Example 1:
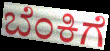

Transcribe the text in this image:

ಬೆಂಕಿಗೆ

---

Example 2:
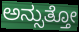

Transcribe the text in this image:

ಅನ್ಸುತ್ತೋ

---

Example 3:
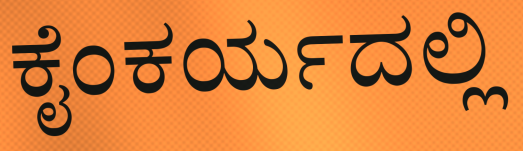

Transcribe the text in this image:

ಕೈಂಕರ್ಯದಲ್ಲಿ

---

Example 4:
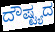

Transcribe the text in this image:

ದೌಷ್ಟ್ಯದ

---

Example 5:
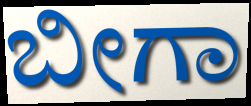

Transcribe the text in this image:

ಬೀಗಾ